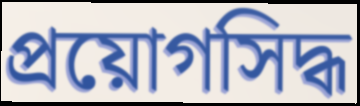
প্রয়োগসিদ্ধ